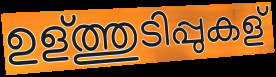
ഉള്ത്തുടിപ്പുകള്